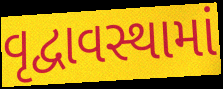
વૃદ્વાવસ્થામાં